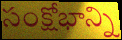
సంక్షోభాన్ని